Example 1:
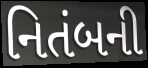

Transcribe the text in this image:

નિતંબની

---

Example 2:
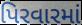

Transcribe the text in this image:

પિરવારમાં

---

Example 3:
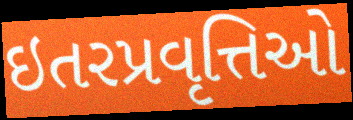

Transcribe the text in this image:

ઇતરપ્રવૃત્તિઓ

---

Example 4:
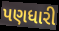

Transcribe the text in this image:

પણધારી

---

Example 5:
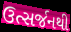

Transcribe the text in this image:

ઉત્સર્જનથી